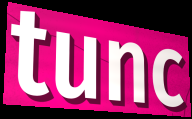
tunc